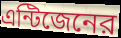
এন্টিজেনের